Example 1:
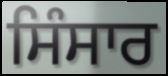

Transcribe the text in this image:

ਸਿੰਸਾਰ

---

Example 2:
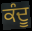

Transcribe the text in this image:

ਕੰਦੂ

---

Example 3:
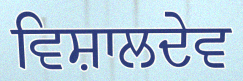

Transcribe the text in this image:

ਵਿਸ਼ਾਲਦੇਵ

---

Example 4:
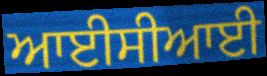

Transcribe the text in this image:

ਆਈਸੀਆਈ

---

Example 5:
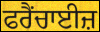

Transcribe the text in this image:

ਫਰੈਂਚਾਈਜ਼